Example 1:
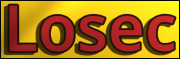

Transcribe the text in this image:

Losec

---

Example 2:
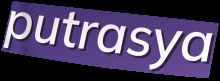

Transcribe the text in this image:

putrasya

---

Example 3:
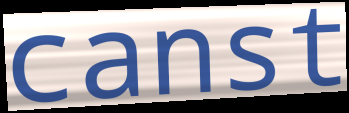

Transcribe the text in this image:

canst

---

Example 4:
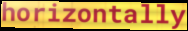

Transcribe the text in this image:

horizontally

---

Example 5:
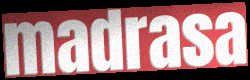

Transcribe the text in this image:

madrasa